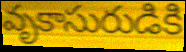
వృకాసురుడికి